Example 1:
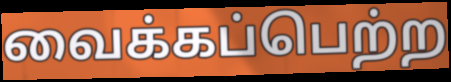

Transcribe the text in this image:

வைக்கப்பெற்ற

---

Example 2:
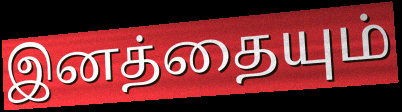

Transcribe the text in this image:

இனத்தையும்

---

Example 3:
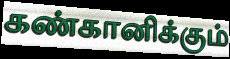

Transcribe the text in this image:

கண்கானிக்கும்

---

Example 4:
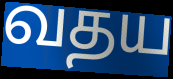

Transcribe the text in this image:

வதய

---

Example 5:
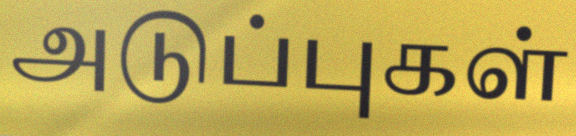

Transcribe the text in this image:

அடுப்புகள்